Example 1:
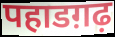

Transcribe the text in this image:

पहाडग़ढ़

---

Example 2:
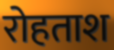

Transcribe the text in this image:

रोहताश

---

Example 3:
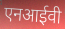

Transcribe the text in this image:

एनआईवी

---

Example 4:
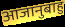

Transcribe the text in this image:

आजानुबाहु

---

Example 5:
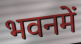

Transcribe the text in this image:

भवनमें